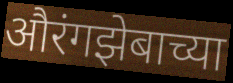
औरंगझेबाच्या